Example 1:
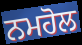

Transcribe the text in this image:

ਨਮਹੋਲ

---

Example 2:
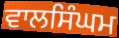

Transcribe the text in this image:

ਵਾਲਸਿੰਘਮ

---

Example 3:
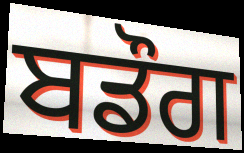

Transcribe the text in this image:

ਬਡੌਗ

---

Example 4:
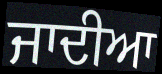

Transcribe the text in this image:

ਜਾਦੀਆ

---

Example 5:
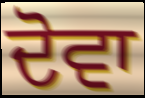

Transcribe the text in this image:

ਦੋਵਾ